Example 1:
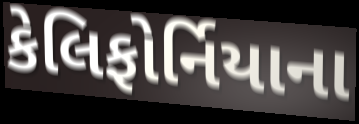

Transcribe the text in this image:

કેલિફોર્નિયાના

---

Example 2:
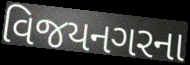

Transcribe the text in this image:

વિજયનગરના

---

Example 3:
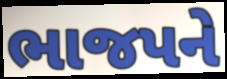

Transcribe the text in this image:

ભાજપને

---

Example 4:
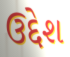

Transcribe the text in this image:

ઉદ્દેશ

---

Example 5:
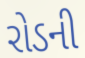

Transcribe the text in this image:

રોડની